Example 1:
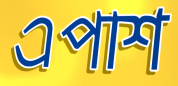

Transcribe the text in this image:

এপাশ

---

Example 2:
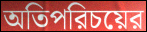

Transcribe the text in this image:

অতিপরিচয়ের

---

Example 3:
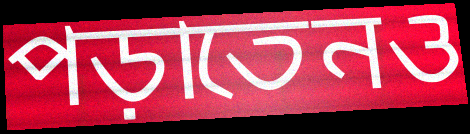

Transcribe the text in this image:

পড়াতেনও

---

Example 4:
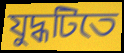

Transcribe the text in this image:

যুদ্ধটিতে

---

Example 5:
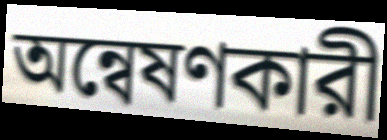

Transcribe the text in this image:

অন্বেষণকারী